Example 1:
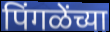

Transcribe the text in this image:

पिंगळेंच्या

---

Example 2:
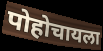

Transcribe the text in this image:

पोहोचायला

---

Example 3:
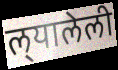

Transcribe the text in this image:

ल्यालेली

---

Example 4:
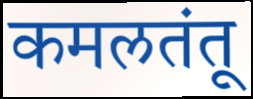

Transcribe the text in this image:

कमलतंतू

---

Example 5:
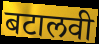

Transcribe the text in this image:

बटालवी